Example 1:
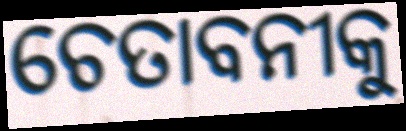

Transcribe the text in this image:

ଚେତାବନୀକୁ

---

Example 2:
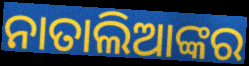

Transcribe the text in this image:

ନାତାଲିଆଙ୍କର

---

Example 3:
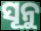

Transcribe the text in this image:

ସୂନୁ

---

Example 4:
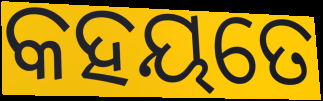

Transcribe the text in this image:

କହୟତେ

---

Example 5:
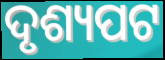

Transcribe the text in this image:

ଦୃଶ୍ୟପଟ